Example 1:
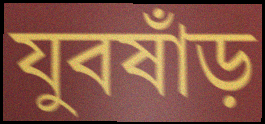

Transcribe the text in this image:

যুবষাঁড়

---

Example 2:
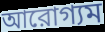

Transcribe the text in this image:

আরোগ্যম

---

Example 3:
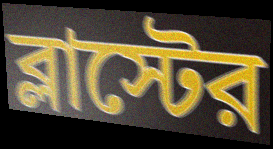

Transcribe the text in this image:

ব্লাস্টের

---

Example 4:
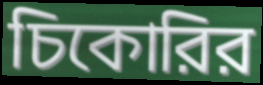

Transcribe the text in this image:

চিকোরির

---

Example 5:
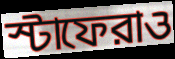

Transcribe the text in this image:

স্টাফেরাও